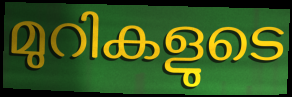
മുറികളുടെ